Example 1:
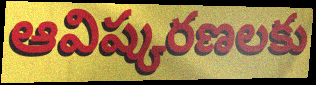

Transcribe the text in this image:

ఆవిష్కరణలకు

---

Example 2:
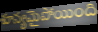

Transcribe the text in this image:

శూన్యమైపోయింది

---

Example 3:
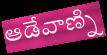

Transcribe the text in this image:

ఆడేవాణ్ని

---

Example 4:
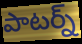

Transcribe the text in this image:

పాటర్న్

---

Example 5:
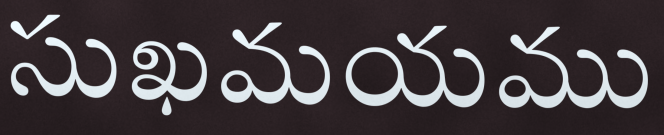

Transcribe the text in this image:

సుఖమయము